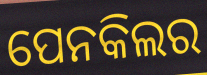
ପେନକିଲର